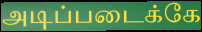
அடிப்படைக்கே